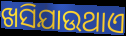
ଖସିଯାଉଥାଏ